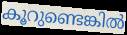
കൂറുണ്ടെങ്കിൽ